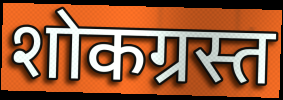
शोकग्रस्त